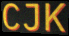
CJK